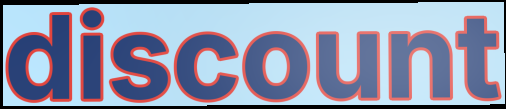
discount